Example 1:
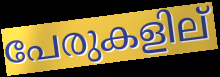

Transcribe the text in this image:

പേരുകളില്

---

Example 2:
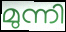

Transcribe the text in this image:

മുന്നി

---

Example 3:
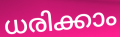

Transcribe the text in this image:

ധരിക്കാം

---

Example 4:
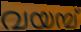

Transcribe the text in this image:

വയമ്പ്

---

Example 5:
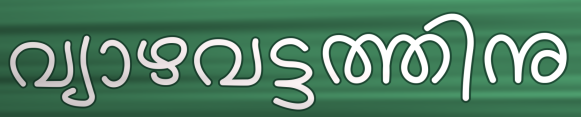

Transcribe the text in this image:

വ്യാഴവട്ടത്തിനു